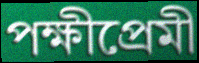
পক্ষীপ্রেমী